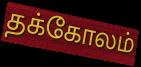
தக்கோலம்